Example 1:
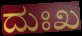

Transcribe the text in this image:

ದುಃಖ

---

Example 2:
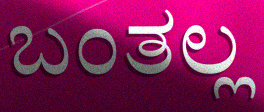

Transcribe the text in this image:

ಬಂತಲ್ಲ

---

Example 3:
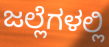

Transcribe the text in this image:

ಜಲ್ಲೆಗಳಲ್ಲಿ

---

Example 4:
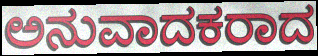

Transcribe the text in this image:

ಅನುವಾದಕರಾದ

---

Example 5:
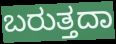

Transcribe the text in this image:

ಬರುತ್ತದಾ